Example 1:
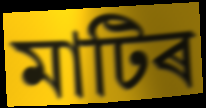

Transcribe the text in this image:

মাটিৰ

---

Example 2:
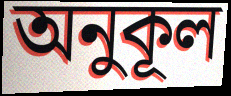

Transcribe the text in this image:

অনুকূল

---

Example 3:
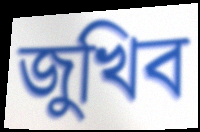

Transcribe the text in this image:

জুখিব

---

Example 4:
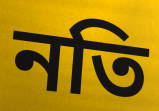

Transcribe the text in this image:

নতি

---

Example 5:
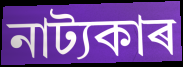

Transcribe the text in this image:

নাট্যকাৰ